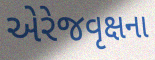
એરેજવૃક્ષના